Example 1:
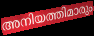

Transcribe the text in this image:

അനിയത്തിമാരും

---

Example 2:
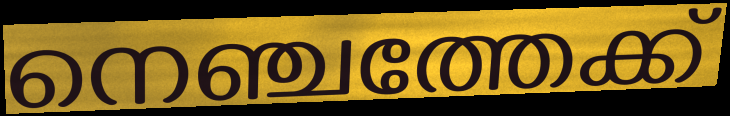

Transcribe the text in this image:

നെഞ്ചത്തേക്ക്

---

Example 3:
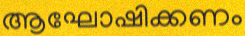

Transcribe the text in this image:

ആഘോഷിക്കണം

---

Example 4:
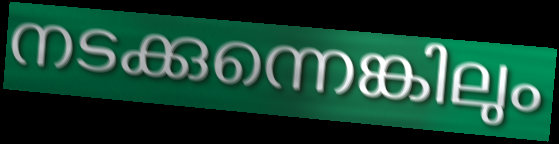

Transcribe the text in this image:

നടക്കുന്നെങ്കിലും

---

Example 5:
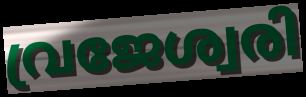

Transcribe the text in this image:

വ്രജേശ്വരി